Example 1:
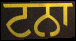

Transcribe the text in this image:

ਟਨਾ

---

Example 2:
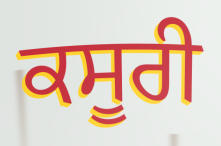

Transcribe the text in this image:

ਕਸੂਰੀ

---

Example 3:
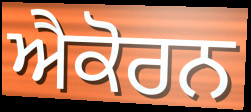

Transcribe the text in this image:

ਐਕੋਰਨ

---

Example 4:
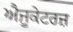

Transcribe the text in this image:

ਐਜੂਕੇਟਰਜ਼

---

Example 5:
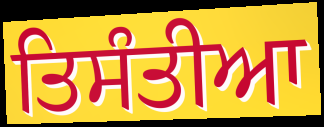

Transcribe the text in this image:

ਤਿਸੰਤੀਆ